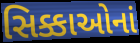
સિક્કાઓનાં